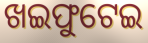
ଖଇଫୁଟେଇ